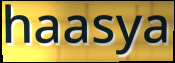
haasya